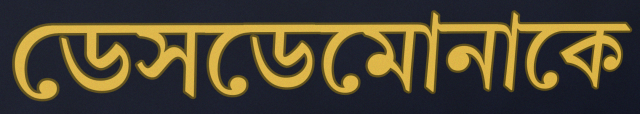
ডেসডেমোনাকে